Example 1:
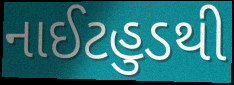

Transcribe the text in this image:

નાઈટહુડથી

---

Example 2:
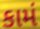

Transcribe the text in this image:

કામં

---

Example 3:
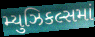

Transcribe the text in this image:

મ્યુઝિકલ્સમાં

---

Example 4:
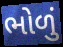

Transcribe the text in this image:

ભોળું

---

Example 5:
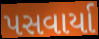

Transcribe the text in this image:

પસવાર્યા